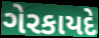
ગેરકાયદે